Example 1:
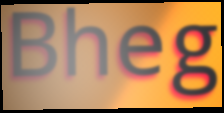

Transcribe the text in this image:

Bheg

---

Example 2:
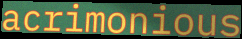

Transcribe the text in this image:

acrimonious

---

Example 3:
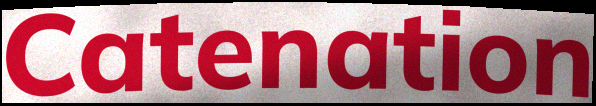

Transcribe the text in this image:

Catenation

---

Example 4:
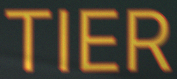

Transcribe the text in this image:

TIER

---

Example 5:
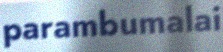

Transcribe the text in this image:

parambumalai